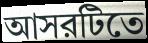
আসরটিতে